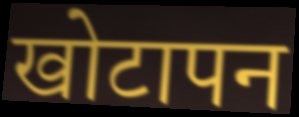
खोटापन